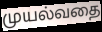
முயல்வதை